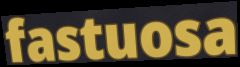
fastuosa